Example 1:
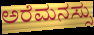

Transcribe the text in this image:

ಅರೆಮನಸ್ಸು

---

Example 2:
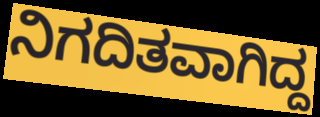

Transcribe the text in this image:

ನಿಗದಿತವಾಗಿದ್ದ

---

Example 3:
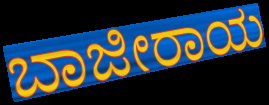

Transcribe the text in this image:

ಬಾಜೀರಾಯ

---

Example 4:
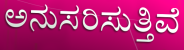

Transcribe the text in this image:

ಅನುಸರಿಸುತ್ತಿವೆ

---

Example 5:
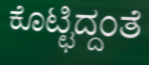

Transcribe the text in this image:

ಕೊಟ್ಟಿದ್ದಂತೆ